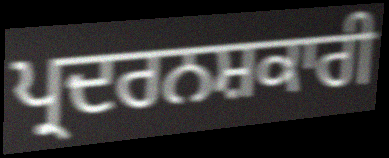
ਪ੍ਰਦਰਨਸ਼ਕਾਰੀ